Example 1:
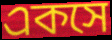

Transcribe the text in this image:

একসে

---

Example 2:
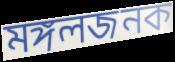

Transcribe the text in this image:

মঙ্গলজনক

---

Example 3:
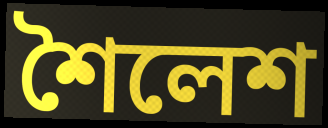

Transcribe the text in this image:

শৈলেশ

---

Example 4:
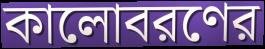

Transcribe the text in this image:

কালোবরণের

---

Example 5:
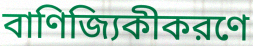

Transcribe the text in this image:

বাণিজ্যিকীকরণে